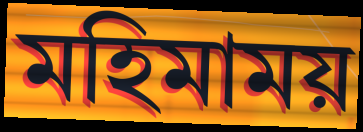
মহিমাময়